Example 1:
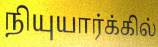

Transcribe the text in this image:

நியுயார்க்கில்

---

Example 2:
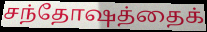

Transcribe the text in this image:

சந்தோஷத்தைக்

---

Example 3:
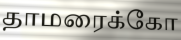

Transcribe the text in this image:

தாமரைக்கோ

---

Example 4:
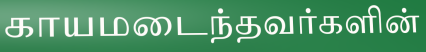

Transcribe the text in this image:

காயமடைந்தவர்களின்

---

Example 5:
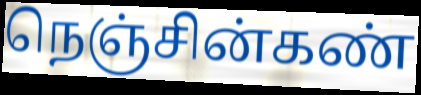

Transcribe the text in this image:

நெஞ்சின்கண்